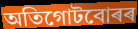
অতিগোটবোৰৰ